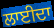
ਲਾਈਦਾ